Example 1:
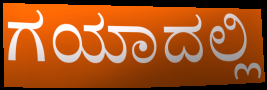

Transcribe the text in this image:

ಗಯಾದಲ್ಲಿ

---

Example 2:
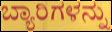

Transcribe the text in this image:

ಬ್ಯಾರಿಗಳನ್ನು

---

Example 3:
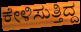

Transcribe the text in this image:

ಕೇಳಿಸುತ್ತಿದ್ದ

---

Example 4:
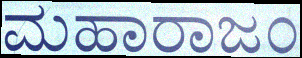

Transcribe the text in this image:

ಮಹಾರಾಜಂ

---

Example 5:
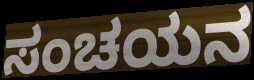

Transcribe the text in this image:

ಸಂಚಯನ